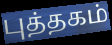
புத்தகம்